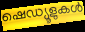
ഷെഡ്യൂളുകൾ